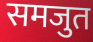
समजुत